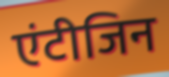
एंटीजिन